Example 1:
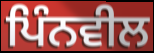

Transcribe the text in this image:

ਪਿੰਨਵੀਲ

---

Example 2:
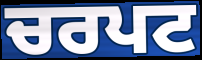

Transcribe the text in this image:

ਚਰਪਟ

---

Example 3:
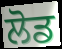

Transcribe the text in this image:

ਲੋਡ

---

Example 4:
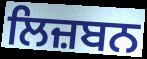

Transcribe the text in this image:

ਲਿਜ਼ਬਨ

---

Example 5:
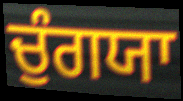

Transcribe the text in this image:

ਚੁੰਗਯਾ